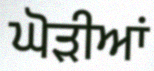
ਘੋੜੀਆਂ